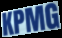
KPMG